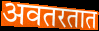
अवतरतात